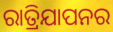
ରାତ୍ରିଯାପନର